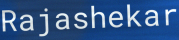
Rajashekar